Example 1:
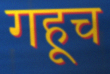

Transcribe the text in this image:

गहूच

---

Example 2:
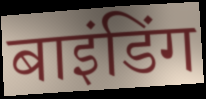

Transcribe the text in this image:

बाइंडिंग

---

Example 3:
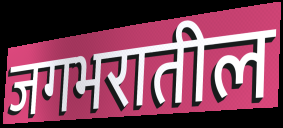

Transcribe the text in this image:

जगभरातील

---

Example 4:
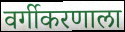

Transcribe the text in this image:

वर्गीकरणाला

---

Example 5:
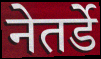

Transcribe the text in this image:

नेतर्डे